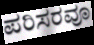
ಪರಿಸರವೂ